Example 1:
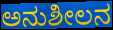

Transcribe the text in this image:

ಅನುಶೀಲನ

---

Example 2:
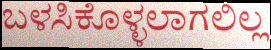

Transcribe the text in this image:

ಬಳಸಿಕೊಳ್ಳಲಾಗಲಿಲ್ಲ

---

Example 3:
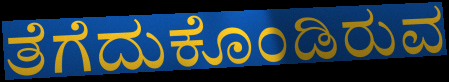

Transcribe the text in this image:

ತೆಗೆದುಕೊಂಡಿರುವ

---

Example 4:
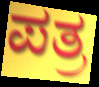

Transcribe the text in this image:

ಪತ್ರ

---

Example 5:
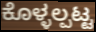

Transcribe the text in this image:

ಕೊಳ್ಳಲ್ಪಟ್ಟ